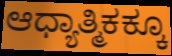
ಆಧ್ಯಾತ್ಮಿಕಕ್ಕೂ